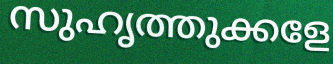
സുഹൃത്തുക്കളേ